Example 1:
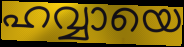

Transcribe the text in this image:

ഹവ്വായെ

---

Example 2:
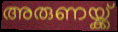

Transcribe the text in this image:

അരുണയ്ക്ക്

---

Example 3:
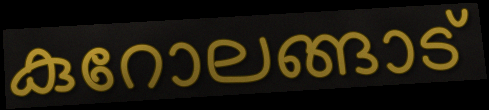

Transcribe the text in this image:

കുറോലങ്ങാട്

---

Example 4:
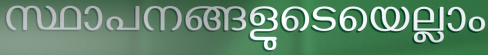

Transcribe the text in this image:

സ്ഥാപനങ്ങളുടെയെല്ലാം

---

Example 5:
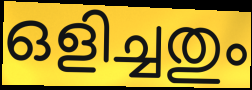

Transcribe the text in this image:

ഒളിച്ചതും